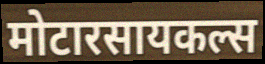
मोटारसायकल्स